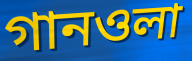
গানওলা